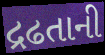
દ્રઢતાની